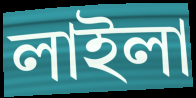
লাইলা